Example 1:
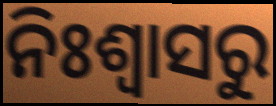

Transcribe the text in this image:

ନିଃଶ୍ଵାସରୁ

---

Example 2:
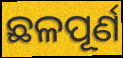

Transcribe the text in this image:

ଛଳପୂର୍ଣ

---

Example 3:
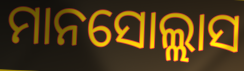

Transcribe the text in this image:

ମାନସୋଲ୍ଲାସ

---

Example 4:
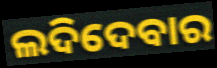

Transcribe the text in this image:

ଲଦିଦେବାର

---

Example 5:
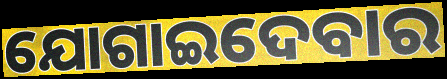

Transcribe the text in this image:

ଯୋଗାଇଦେବାର